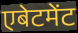
एबेटमेंट